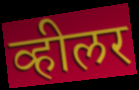
व्हीलर